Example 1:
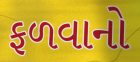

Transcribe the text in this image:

ફળવાનો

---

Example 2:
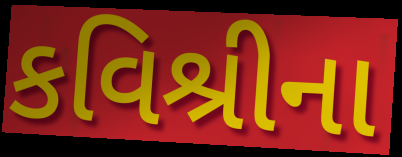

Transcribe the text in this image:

કવિશ્રીના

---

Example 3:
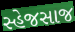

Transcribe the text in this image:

સ્હેજસાજ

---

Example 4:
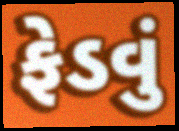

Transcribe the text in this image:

ફેડવું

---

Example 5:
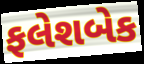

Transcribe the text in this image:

ફલેશબેક